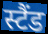
स्टैंड